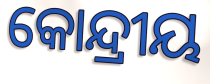
କୋନ୍ଦ୍ରୀୟ